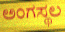
ಅಂಗಸ್ಥಲ